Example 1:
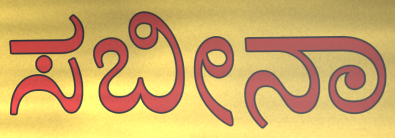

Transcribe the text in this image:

ಸಬೀನಾ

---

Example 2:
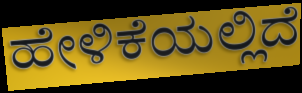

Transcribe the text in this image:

ಹೇಳಿಕೆಯಲ್ಲಿದೆ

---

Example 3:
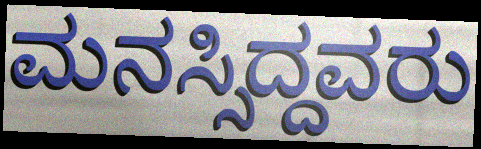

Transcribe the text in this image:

ಮನಸ್ಸಿದ್ದವರು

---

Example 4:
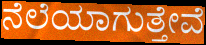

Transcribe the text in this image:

ನೆಲೆಯಾಗುತ್ತೇವೆ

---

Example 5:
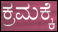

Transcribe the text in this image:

ಕ್ರಮಕ್ಕೆ